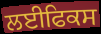
ਲਈਫਿਕਸ